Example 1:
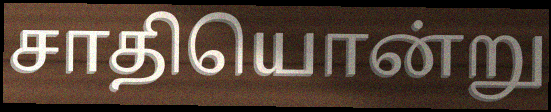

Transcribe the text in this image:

சாதியொன்று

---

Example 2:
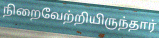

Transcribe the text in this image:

நிறைவேற்றியிருந்தார்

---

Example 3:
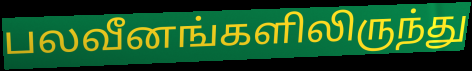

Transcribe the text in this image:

பலவீனங்களிலிருந்து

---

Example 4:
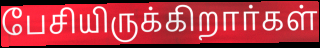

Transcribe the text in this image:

பேசியிருக்கிறார்கள்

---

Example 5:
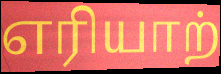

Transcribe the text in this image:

எரியாற்